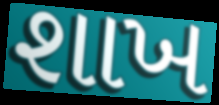
શાખ